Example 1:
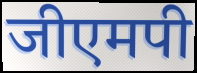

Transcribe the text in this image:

जीएमपी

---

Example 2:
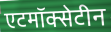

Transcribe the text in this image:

एटमॉक्सेटीन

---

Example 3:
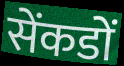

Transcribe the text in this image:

सेंकडों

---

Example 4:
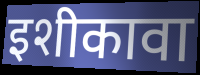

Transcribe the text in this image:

इशीकावा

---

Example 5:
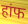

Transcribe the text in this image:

हांफ